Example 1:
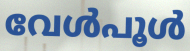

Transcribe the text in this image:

വേൾപൂൾ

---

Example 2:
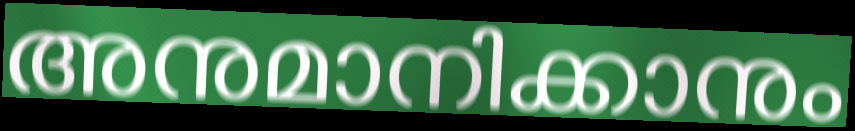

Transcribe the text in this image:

അനുമാനിക്കാനും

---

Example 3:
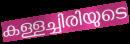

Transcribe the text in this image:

കള്ളച്ചിരിയുടെ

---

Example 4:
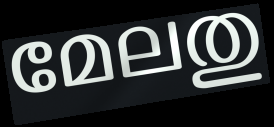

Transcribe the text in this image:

മേലതു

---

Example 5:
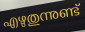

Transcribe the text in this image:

എഴുതുന്നുണ്ട്